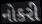
નોકરી